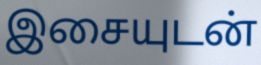
இசையுடன்